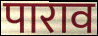
पाराव